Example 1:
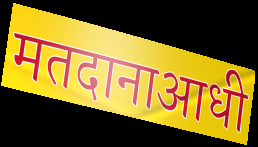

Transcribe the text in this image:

मतदानाआधी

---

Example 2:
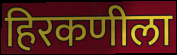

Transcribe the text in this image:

हिरकणीला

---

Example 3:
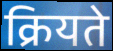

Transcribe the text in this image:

क्रियते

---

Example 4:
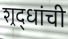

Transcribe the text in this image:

श्रद्धांची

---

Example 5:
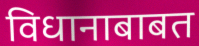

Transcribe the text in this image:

विधानाबाबत